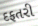
દફતરી